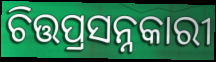
ଚିତ୍ତପ୍ରସନ୍ନକାରୀ